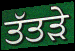
ਤੱਤੜੇ